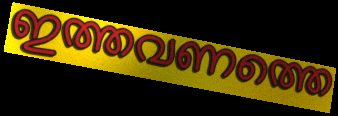
ഇത്തവണത്തെ